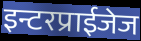
इन्टरप्राईजेज